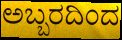
ಅಬ್ಬರದಿಂದ